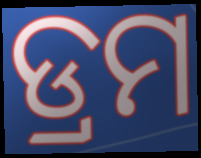
ଡ୍ରମ